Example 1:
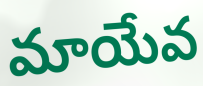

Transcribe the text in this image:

మాయేవ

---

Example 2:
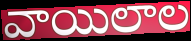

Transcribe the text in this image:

వాయిలాల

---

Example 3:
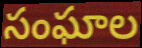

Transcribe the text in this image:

సంఘాల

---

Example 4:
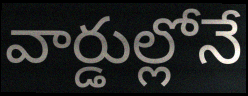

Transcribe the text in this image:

వార్డుల్లోనే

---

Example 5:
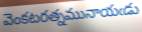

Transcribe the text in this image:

వెంకటరత్నమునాయఁడు